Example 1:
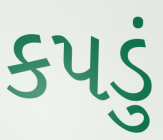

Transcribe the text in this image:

કપડું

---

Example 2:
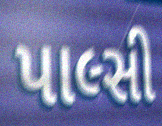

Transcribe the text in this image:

પાલ્સી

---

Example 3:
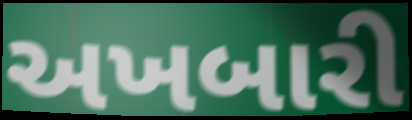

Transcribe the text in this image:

અખબારી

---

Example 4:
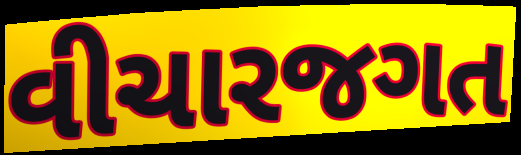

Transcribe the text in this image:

વીચારજગત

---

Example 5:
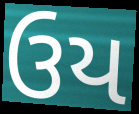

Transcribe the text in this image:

ઉય